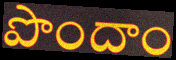
పొందాం